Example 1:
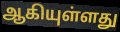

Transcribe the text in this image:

ஆகியுள்ளது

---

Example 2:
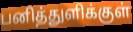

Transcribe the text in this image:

பனித்துளிக்குள்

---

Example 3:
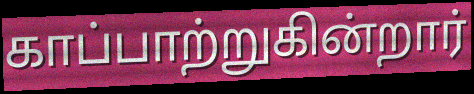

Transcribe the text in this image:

காப்பாற்றுகின்றார்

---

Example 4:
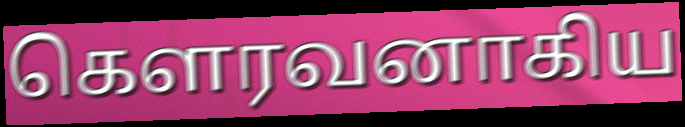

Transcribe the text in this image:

கௌரவனாகிய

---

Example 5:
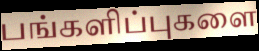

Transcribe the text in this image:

பங்களிப்புகளை